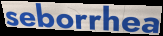
seborrhea